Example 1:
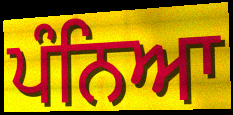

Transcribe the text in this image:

ਪੰਨਿਆ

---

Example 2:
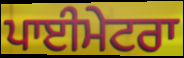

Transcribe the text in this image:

ਪਾਈਮੇਟਰਾ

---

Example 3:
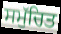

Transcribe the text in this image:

ਸਮੁੱਚਿਤ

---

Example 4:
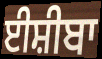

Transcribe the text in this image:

ਈਸ਼ੀਬਾ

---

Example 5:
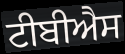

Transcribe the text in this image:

ਟੀਬੀਐਸ